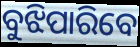
ବୁଝିପାରିବେ